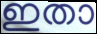
ഇതാ